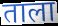
ताला